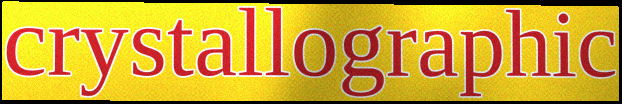
crystallographic